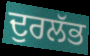
ਦੁਰਲੱਭ